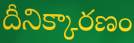
దీనిక్కారణం